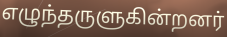
எழுந்தருளுகின்றனர்